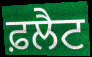
ਫ਼ਲੈਟ